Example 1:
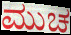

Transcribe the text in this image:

ಮುಚ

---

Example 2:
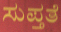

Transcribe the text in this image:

ಸುಪ್ತತೆ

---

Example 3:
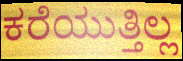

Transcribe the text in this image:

ಕರೆಯುತ್ತಿಲ್ಲ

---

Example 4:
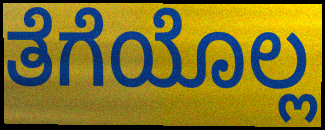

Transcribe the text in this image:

ತೆಗೆಯೊಲ್ಲ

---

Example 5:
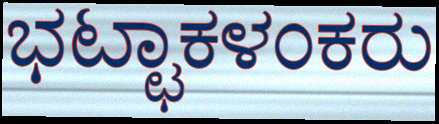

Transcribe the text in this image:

ಭಟ್ಟಾಕಳಂಕರು